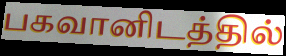
பகவானிடத்தில்